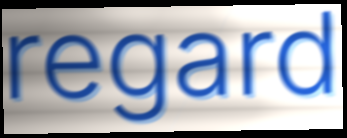
regard